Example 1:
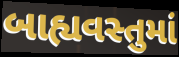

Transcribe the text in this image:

બાહ્યવસ્તુમાં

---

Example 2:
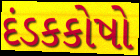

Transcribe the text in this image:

દંડકકોષો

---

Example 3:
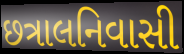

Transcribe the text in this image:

છત્રાલનિવાસી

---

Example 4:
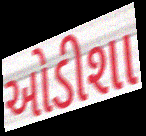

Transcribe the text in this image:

ઓડીશા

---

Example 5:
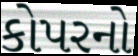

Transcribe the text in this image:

કોપરનો